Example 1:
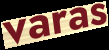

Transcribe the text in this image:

varas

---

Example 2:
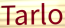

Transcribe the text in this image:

Tarlo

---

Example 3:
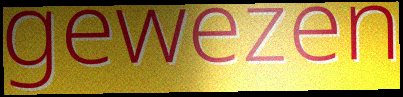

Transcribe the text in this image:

gewezen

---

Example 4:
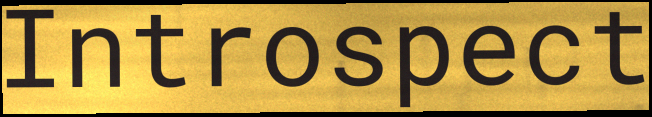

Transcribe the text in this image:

Introspect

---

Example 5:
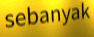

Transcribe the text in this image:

sebanyak